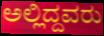
ಅಲ್ಲಿದ್ದವರು